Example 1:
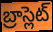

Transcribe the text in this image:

బ్రాస్లెట్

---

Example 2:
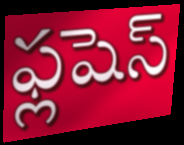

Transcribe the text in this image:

ఫ్లషెస్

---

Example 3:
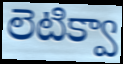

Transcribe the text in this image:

లెటిక్వా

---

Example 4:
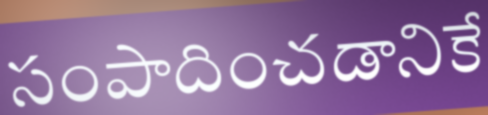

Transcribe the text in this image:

సంపాదించడానికే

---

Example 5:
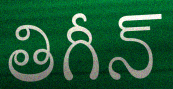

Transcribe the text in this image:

తిగీన్